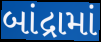
બાંદ્રામાં